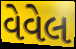
વેવેલ